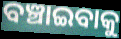
ବଞ୍ଚାଇବାକୁ